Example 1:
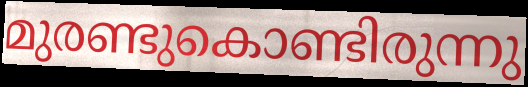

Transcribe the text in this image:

മുരണ്ടുകൊണ്ടിരുന്നു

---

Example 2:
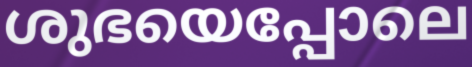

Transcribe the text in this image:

ശുഭയെപ്പോലെ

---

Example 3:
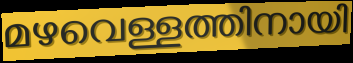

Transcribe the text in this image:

മഴവെള്ളത്തിനായി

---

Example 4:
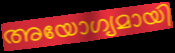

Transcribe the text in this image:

അയോഗ്യമായി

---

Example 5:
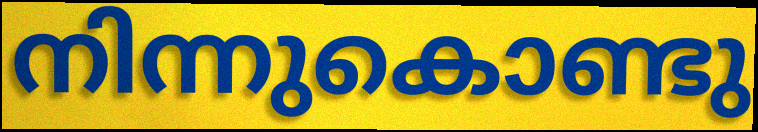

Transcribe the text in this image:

നിന്നുകൊണ്ടു